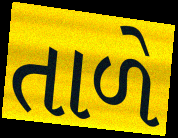
તાળે